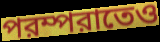
পরম্পরাতেও